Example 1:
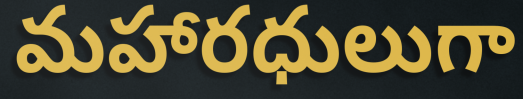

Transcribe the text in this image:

మహారధులుగా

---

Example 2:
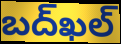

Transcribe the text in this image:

బద్‌ఖల్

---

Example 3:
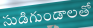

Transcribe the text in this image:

సుడిగుండాలతో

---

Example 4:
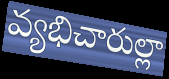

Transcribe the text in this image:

వ్యభిచారుల్లా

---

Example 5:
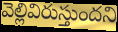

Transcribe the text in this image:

వెల్లివిరుస్తుందని